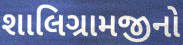
શાલિગ્રામજીનો